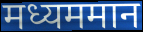
मध्यममान